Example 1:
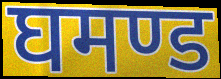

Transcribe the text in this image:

घमण्ड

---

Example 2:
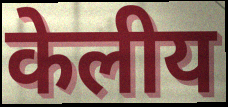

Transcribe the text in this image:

केलीय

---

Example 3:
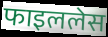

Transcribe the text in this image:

फाइललेस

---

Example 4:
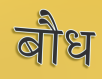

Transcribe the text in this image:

बौध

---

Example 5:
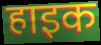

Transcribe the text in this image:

हाइक